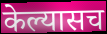
केल्यासच